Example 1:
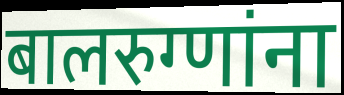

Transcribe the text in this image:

बालरुग्णांना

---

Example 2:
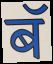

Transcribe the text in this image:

बॅ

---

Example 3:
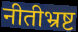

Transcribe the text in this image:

नीतीभ्रष्ट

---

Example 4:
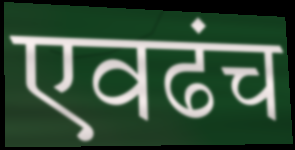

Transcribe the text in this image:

एवढंच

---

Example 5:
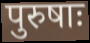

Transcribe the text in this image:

पुरुषाः